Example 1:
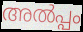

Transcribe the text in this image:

അൽപ്പം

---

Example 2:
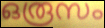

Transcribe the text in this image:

ഒരൂസം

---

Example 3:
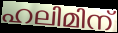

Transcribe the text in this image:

ഹലിമിന്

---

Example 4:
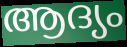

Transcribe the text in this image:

ആദ്യം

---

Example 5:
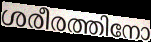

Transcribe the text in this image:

ശരീരത്തിനോ